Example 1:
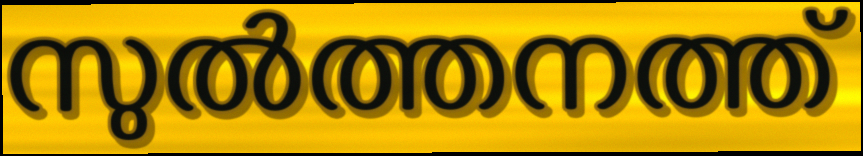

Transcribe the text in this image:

സുൽത്തനത്ത്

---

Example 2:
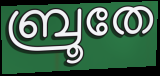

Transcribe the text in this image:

ബ്രൂതേ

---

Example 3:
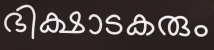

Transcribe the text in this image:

ഭിക്ഷാടകരും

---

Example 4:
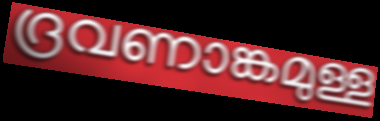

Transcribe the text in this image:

ദ്രവണാങ്കമുള്ള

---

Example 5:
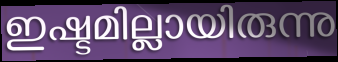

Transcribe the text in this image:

ഇഷ്ടമില്ലായിരുന്നു